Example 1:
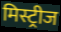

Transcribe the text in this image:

मिस्ट्रीज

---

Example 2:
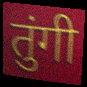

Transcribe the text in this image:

तुंगी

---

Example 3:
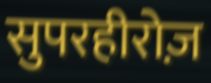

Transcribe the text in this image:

सुपरहीरोज़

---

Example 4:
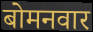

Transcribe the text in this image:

बोमनवार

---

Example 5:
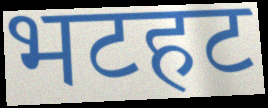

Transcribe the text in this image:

भटहट